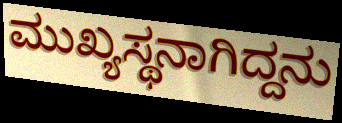
ಮುಖ್ಯಸ್ಥನಾಗಿದ್ದನು